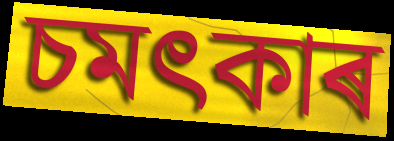
চমৎকাৰ